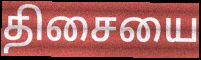
திசையை